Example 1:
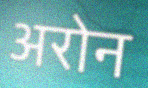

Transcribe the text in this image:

अरोन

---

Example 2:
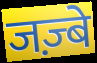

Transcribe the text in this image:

जज़्बे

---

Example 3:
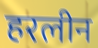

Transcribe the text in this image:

हरलीन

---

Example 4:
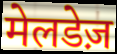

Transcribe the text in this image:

मेलडेज़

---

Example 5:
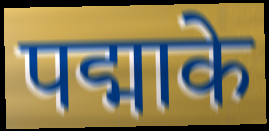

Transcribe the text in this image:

पद्माके